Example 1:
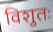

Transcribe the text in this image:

विश्रुतः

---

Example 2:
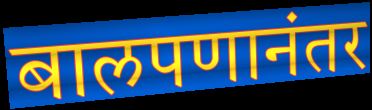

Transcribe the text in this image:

बालपणानंतर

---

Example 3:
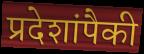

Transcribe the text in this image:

प्रदेशांपैकी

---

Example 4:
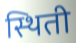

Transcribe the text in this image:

स्थिती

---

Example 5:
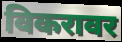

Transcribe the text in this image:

विकरावर